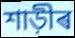
শাড়ীৰ